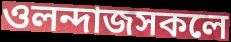
ওলন্দাজসকলে